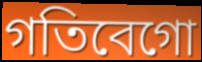
গতিবেগো